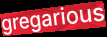
gregarious